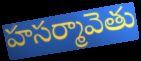
హసర్మావెతు